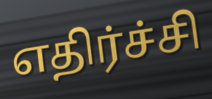
எதிர்ச்சி